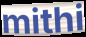
mithi